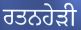
ਰਤਨਹੇੜੀ